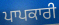
ਪਾਪਕਾਰੀ